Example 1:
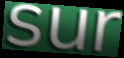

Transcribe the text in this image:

sur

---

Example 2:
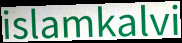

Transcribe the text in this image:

islamkalvi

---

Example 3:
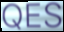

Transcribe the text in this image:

QES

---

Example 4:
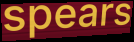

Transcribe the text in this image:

spears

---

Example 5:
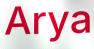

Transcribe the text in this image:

Arya